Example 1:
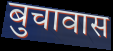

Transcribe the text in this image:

बुचावास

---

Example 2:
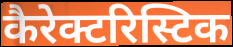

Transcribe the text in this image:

कैरेक्टरिस्टिक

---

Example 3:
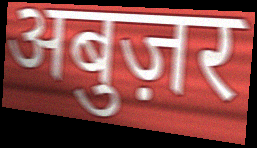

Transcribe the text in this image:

अबुज़र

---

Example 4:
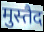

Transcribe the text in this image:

मुस्‍तैद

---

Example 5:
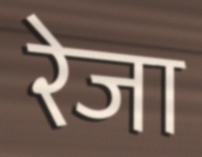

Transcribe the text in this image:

रेजा